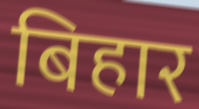
बिहार